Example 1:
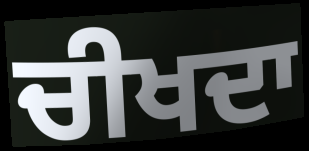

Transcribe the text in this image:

ਚੀਖਦਾ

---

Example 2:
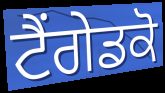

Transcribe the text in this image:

ਟੈਂਗੇਡਕੋ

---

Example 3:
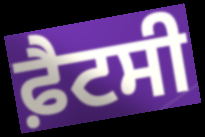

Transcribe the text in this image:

ਫ਼ੈਟਸੀ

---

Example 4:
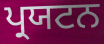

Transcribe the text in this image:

ਪ੍ਰਯਟਨ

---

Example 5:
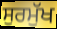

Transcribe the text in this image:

ਸੁਰਮੁੱਖ